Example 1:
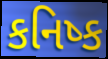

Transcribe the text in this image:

કનિષ્ક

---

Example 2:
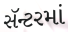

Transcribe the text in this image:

સૅન્ટરમાં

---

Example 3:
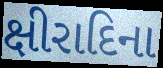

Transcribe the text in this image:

ક્ષીરાદિના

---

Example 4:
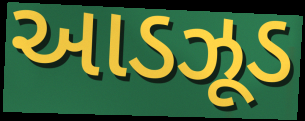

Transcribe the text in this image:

આડઝૂડ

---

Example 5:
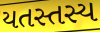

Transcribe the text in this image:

યતસ્તસ્ય